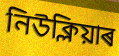
নিউক্লিয়াৰ